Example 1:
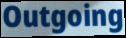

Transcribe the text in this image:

Outgoing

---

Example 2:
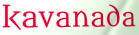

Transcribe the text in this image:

kavanada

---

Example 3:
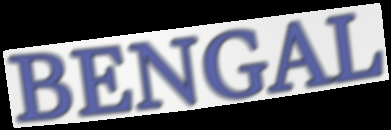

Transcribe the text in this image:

BENGAL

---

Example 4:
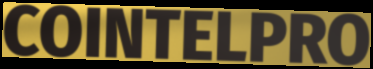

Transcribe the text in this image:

COINTELPRO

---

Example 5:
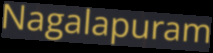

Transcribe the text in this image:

Nagalapuram